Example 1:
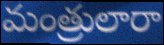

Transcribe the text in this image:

మంత్రులారా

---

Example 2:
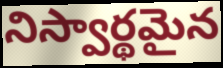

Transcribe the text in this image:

నిస్వార్థమైన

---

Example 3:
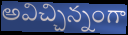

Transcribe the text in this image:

అవిచ్చిన్నంగా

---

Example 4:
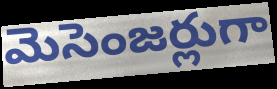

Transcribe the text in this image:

మెసెంజర్లుగా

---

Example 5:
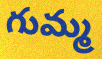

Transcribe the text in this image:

గుమ్మ